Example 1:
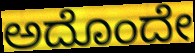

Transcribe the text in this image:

ಅದೊಂದೇ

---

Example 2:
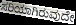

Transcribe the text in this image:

ಸರಿಯಾಗಿರುವುದೇ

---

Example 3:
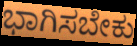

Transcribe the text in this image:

ಭಾಗಿಸಬೇಕು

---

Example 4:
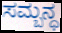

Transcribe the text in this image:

ಸಮ್ಬನ್ಧ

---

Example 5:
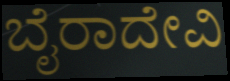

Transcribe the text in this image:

ಬೈರಾದೇವಿ